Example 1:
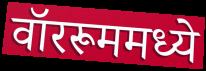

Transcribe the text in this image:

वॉररूममध्ये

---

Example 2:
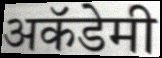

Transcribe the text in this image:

अकॅडेमी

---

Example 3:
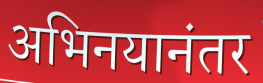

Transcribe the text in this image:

अभिनयानंतर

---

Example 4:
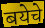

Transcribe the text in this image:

बयेचे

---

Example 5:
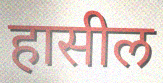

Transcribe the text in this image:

हासील